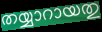
തയ്യാറായതു